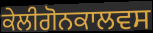
ਕੇਲੀਗੋਨਕਾਲਵਸ